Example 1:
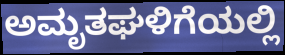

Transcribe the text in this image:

ಅಮೃತಘಳಿಗೆಯಲ್ಲಿ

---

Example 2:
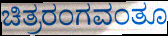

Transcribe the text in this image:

ಚಿತ್ರರಂಗವಂತೂ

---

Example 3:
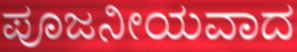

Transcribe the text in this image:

ಪೂಜನೀಯವಾದ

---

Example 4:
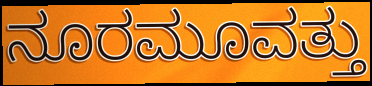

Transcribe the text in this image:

ನೂರಮೂವತ್ತು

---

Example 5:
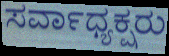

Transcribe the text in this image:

ಸರ್ವಾಧ್ಯಕ್ಷರು